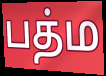
பத்ம